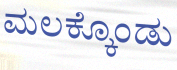
ಮಲಕ್ಕೊಂಡು